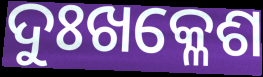
ଦୁଃଖକ୍ଳେଶ